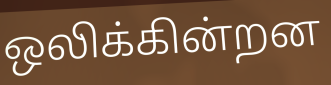
ஒலிக்கின்றன